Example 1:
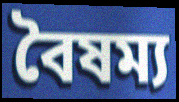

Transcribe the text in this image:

বৈষম্য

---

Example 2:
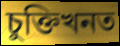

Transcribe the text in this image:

চুক্তিখনত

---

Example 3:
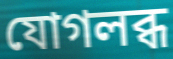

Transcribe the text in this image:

যোগলব্ধ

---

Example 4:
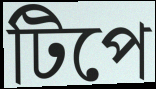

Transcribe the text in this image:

টিপে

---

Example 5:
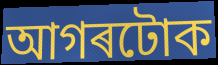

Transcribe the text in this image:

আগৰটোক